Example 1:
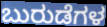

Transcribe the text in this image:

ಬುರುಡೆಗಳ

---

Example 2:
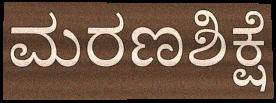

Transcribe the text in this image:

ಮರಣಶಿಕ್ಷೆ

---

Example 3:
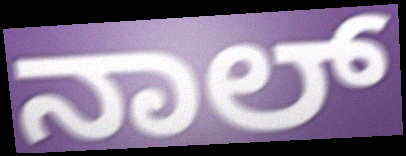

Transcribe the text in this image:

ನಾಲ್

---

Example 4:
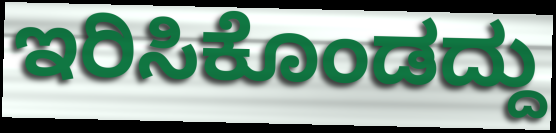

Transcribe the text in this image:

ಇರಿಸಿಕೊಂಡದ್ದು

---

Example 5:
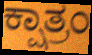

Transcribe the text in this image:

ಕ್ಷಾತ್ರಂ